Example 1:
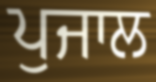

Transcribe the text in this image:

ਪੁਜਾਲ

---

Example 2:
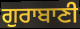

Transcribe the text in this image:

ਗੁਰਾਬਾਣੀ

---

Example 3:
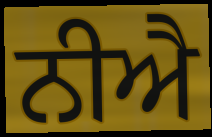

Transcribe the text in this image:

ਨੀਐ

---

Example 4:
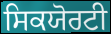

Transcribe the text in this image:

ਸਿਕਯੋਰਟੀ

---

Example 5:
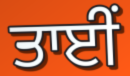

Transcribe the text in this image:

ਤਾਈਂ